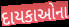
દાયકાઓના